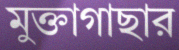
মুক্তাগাছার